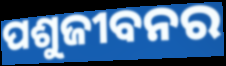
ପଶୁଜୀବନର